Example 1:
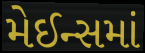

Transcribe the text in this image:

મેઈન્સમાં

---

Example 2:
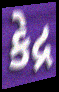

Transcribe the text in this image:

કેદ્ર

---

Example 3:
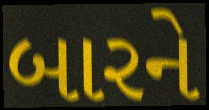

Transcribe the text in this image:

બારને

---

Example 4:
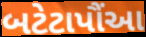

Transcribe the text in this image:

બટેટાપૌંઆ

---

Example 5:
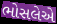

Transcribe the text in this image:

ભોસલેએ